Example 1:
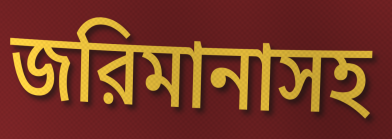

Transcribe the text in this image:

জরিমানাসহ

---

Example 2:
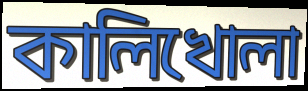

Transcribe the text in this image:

কালিখোলা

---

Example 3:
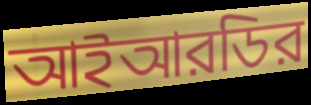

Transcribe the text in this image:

আইআরডির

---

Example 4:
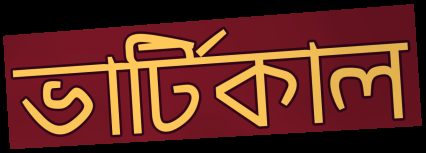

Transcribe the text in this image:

ভার্টিকাল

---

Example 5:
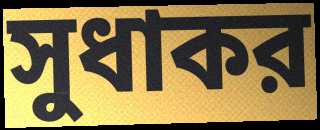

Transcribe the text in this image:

সুধাকর